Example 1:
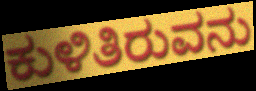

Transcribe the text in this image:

ಕುಳಿತಿರುವನು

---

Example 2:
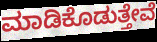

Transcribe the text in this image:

ಮಾಡಿಕೊಡುತ್ತೇವೆ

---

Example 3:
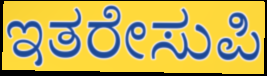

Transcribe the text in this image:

ಇತರೇಸುಪಿ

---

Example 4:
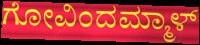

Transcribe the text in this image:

ಗೋವಿಂದಮ್ಮಾಳ್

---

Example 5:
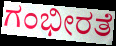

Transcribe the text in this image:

ಗಂಭೀರತೆ